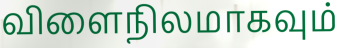
விளைநிலமாகவும்